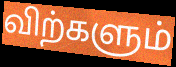
விற்களும்